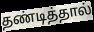
தண்டித்தால்